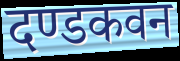
दण्डकवन